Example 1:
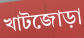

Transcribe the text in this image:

খাটজোড়া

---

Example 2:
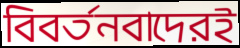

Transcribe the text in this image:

বিবর্তনবাদেরই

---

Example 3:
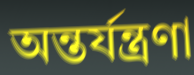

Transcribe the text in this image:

অন্তর্যন্ত্রণা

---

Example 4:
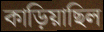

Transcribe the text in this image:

কাড়িয়াছিল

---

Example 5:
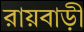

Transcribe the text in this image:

রায়বাড়ী